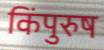
किंपुरुष